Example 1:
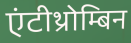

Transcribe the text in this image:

एंटीथ्रोम्बिन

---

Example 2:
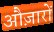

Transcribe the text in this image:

औज़ारों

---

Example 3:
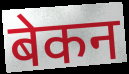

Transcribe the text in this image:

बेकन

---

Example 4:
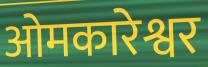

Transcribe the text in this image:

ओमकारेश्वर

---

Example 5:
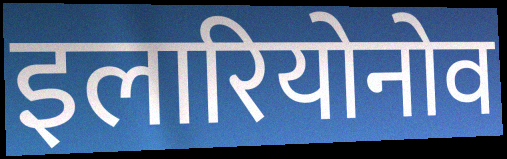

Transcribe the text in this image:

इलारियोनोव